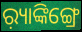
ର଼୍ୟାଙ୍କିଙ୍ଗ୍ରେ